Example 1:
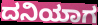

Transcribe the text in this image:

ದನಿಯಾಗ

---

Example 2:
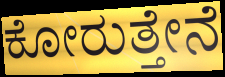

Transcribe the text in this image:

ಕೋರುತ್ತೇನೆ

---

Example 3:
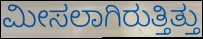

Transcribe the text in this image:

ಮೀಸಲಾಗಿರುತ್ತಿತ್ತು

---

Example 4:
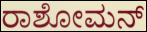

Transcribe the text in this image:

ರಾಶೋಮನ್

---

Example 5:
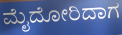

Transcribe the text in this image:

ಮೈದೋರಿದಾಗ